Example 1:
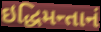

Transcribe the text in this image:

ઇદ્ધિમન્તાનં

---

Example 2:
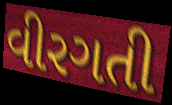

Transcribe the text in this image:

વીરગતી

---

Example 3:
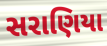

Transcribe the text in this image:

સરાણિયા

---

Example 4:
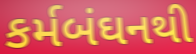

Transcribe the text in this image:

કર્મબંઘનથી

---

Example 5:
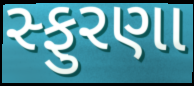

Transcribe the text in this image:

સ્ફુરણા